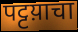
पट्टय़ाचा